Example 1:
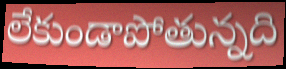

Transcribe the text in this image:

లేకుండాపోతున్నది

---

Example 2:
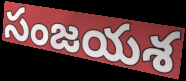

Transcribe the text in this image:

సంజయశ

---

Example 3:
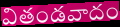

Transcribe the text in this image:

వితండవాదం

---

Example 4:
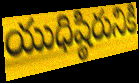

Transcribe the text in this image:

యుధిష్ఠిరునికి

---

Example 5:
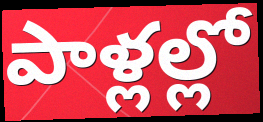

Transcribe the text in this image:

పాళ్లల్లో